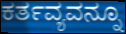
ಕರ್ತವ್ಯವನ್ನೂ